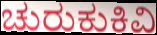
ಚುರುಕುಕಿವಿ